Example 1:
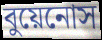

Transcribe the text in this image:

বুয়েনোস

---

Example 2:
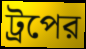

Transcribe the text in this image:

ট্রপের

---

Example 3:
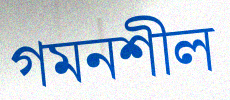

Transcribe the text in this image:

গমনশীল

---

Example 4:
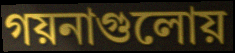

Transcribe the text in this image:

গয়নাগুলোয়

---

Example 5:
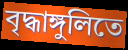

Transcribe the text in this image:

বৃদ্ধাঙ্গুলিতে